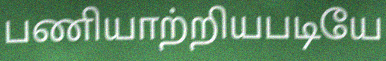
பணியாற்றியபடியே